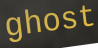
ghost